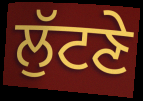
ਲੁੱਟਣੇ